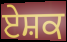
ਏਸ਼ਕ